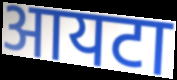
आयटा